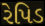
રેપિડ